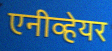
एनीव्हेयर